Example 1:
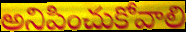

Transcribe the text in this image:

అనిపించుకోవాలి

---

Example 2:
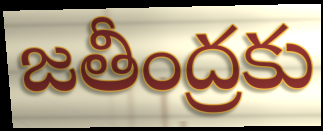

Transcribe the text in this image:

జతీంద్రకు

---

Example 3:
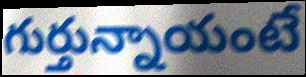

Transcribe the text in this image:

గుర్తున్నాయంటే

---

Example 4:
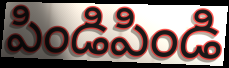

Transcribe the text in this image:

పిండిపిండి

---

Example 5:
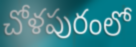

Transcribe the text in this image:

చోళపురంలో